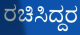
ರಚಿಸಿದ್ದರ